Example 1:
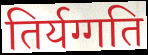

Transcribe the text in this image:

तिर्यग्गति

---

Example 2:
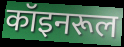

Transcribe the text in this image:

कॉइनरूल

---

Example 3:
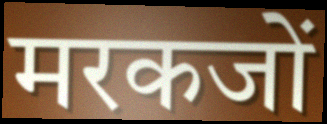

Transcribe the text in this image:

मरकजों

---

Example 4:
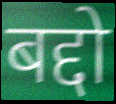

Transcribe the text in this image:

बद्दो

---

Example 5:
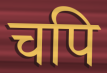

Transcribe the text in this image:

चपि